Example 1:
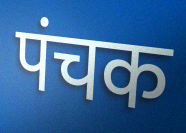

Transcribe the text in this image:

पंचक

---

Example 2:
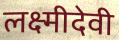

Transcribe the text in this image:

लक्ष्मीदेवी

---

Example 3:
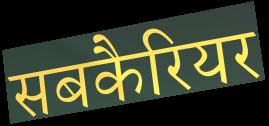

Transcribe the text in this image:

सबकैरियर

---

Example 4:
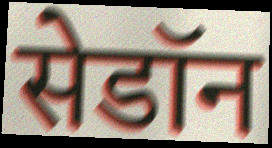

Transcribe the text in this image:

सेडॉन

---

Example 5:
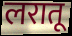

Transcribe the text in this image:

लरातू